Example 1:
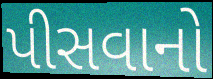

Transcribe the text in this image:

પીસવાનો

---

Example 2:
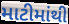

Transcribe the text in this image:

માટીમાંથી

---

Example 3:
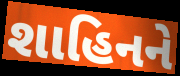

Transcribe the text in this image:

શાહિનને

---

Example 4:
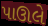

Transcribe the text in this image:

પાઊલે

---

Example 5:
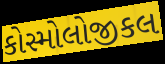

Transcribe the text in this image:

કોસ્મોલોજીકલ